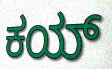
ಕಯ್